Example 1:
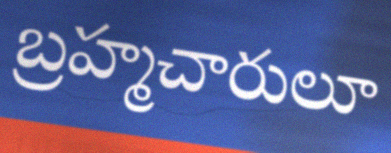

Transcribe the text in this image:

బ్రహ్మచారులూ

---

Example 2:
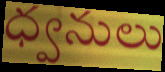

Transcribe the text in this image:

ధ్వనులు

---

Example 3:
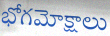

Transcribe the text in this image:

భోగమోక్షాలు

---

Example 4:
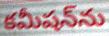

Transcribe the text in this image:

కమీషన్‌ను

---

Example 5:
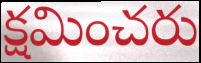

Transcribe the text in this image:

క్షమించరు